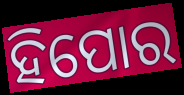
ହିପୋର